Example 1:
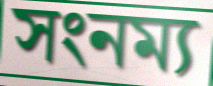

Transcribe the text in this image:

সংনম্য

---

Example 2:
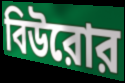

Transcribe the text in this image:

বিউরোর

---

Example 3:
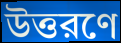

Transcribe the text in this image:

উত্তরণে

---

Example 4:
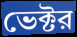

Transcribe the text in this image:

ভেক্টর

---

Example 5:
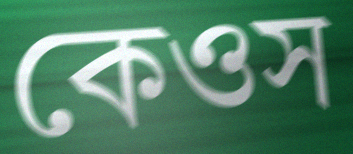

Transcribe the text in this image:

কেওস